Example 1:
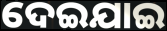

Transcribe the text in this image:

ଦେଇଯାଇ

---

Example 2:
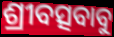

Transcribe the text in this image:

ଶ୍ରୀବତ୍ସବାବୁ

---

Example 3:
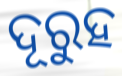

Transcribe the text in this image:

ଦୂରୁହ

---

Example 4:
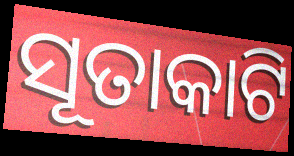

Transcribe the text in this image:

ସୂତାକାଟି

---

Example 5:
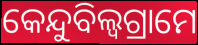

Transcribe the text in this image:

କେନ୍ଦୁବିଲ୍ଵଗ୍ରାମେ